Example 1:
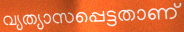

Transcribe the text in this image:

വ്യത്യാസപ്പെട്ടതാണ്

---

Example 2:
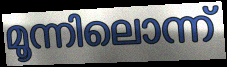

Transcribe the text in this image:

മൂന്നിലൊന്ന്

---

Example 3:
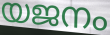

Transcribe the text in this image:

യജനം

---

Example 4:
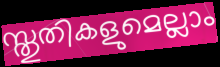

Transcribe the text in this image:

സ്തുതികളുമെല്ലാം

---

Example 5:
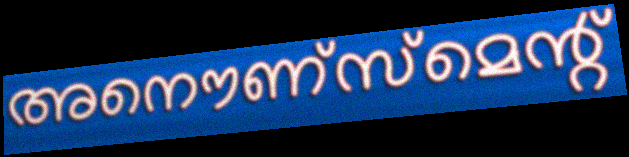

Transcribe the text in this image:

അനൌണ്സ്മെന്റ്